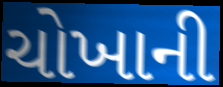
ચોખાની